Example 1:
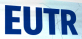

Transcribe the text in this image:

EUTR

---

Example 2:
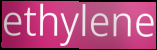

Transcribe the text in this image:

ethylene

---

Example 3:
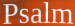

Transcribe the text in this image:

Psalm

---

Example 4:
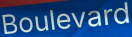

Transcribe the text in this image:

Boulevard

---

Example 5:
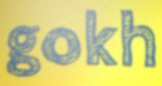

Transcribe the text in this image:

gokh